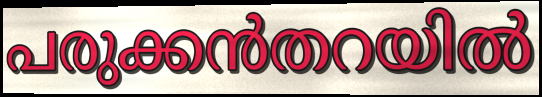
പരുക്കൻതറയിൽ